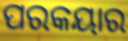
ପରକୟାର